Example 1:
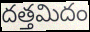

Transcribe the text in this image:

దత్తమిదం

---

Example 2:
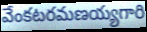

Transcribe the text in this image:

వేంకటరమణయ్యగారి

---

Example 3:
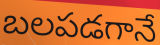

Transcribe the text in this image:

బలపడగానే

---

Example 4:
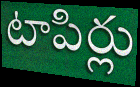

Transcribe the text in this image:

టాపిర్లు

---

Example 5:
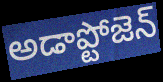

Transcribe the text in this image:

అడాప్టోజెన్